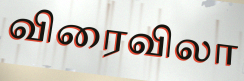
விரைவிலா